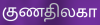
குணதிலகா